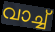
വാച്ച്